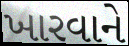
ખારવાને